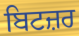
ਬਿਟਜ਼ਰ